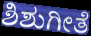
ಶಿಶುಗೀತೆ